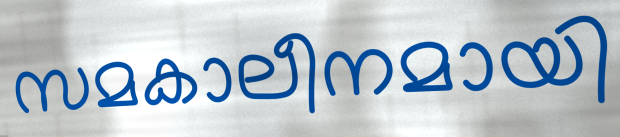
സമകാലീനമായി